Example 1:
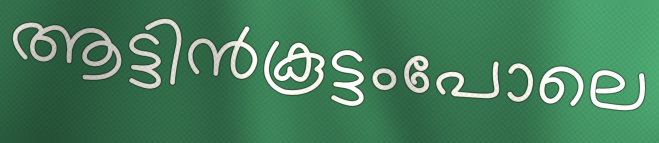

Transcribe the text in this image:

ആട്ടിൻകൂട്ടംപോലെ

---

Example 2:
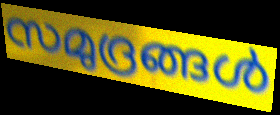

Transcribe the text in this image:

സമുദ്രങ്ങൾ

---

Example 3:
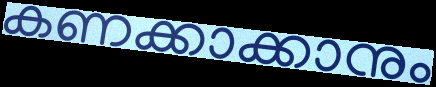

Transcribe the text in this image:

കണക്കാക്കാനും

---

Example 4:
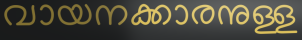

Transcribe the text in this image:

വായനക്കാരനുള്ള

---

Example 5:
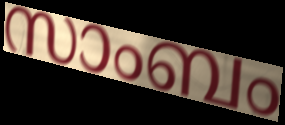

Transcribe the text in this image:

സാംബം